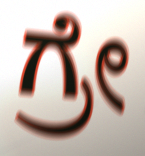
ಗ್ರೇ